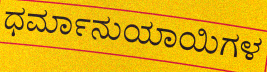
ಧರ್ಮಾನುಯಾಯಿಗಳ